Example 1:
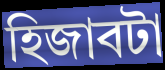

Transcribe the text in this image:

হিজাবটা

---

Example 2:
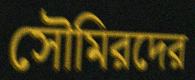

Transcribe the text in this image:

সৌমিরদের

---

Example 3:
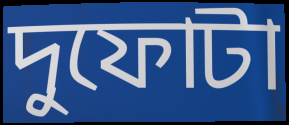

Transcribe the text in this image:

দুফোটা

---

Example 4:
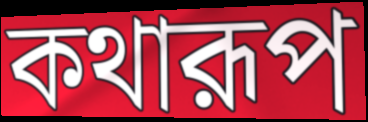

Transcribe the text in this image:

কথারূপ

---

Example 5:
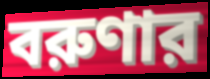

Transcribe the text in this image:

বরুণার